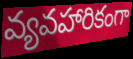
వ్యవహారికంగా